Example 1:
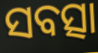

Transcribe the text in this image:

ସବତ୍ସା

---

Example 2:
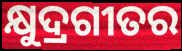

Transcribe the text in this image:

କ୍ଷୁଦ୍ରଗୀତର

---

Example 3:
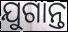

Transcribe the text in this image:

ଯୁଗାନ୍ତ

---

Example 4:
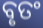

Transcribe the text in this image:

ବୃତଂ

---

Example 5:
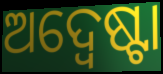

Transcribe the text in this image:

ଅଦ୍ୱେଷ୍ଟା